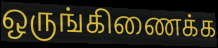
ஒருங்கிணைக்க